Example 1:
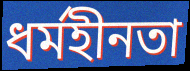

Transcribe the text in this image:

ধর্মহীনতা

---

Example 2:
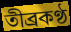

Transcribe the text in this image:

তীব্রকণ্ঠ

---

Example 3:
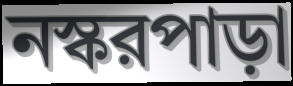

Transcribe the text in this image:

নস্করপাড়া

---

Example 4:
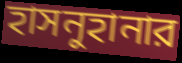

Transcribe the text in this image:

হাসনুহানার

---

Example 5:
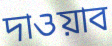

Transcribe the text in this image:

দাওয়াব